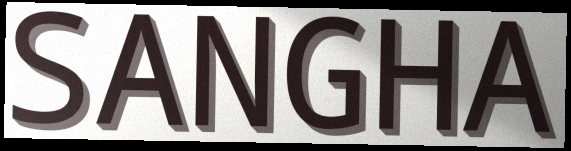
SANGHA